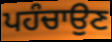
ਪਹੰਚਾਉਣ